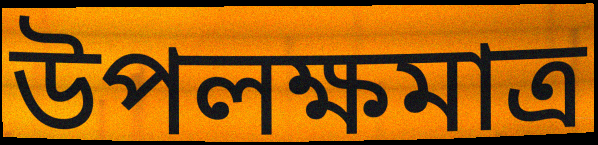
উপলক্ষমাত্র